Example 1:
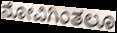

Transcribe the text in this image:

ನೋವಿಗಿಂತಲೂ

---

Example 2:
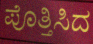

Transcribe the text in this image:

ಪೊತ್ತಿಸಿದ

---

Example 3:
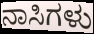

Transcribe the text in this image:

ನಾಸಿಗಳು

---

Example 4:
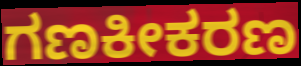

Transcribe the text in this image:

ಗಣಕೀಕರಣ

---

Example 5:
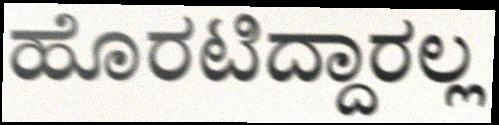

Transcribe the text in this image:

ಹೊರಟಿದ್ದಾರಲ್ಲ